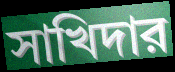
সাখিদার